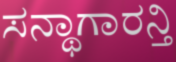
ಸನ್ಥಾಗಾರನ್ತಿ